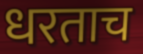
धरताच